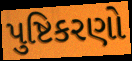
પુષ્ટિકરણો